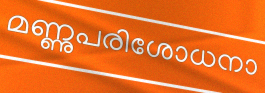
മണ്ണുപരിശോധനാ